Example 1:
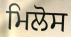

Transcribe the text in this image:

ਮਿਲੋਸ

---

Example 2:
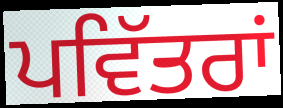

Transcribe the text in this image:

ਪਵਿੱਤਰਾਂ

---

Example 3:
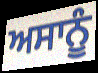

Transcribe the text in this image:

ਅਸਾਨੂੰ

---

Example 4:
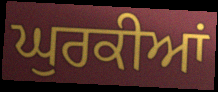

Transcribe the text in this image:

ਘੁਰਕੀਆਂ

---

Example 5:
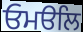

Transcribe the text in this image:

ਓਮੳਲਿ